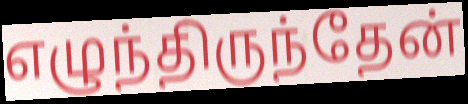
எழுந்திருந்தேன்